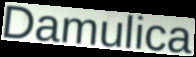
Damulica